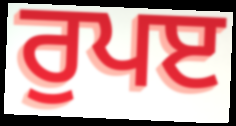
ਰੁਪੲ